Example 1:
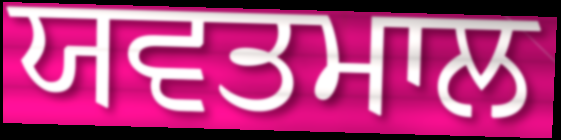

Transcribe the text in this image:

ਯਵਤਮਾਲ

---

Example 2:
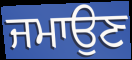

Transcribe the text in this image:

ਜਮਾਉਣ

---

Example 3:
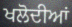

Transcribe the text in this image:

ਖਲੋਦੀਆਂ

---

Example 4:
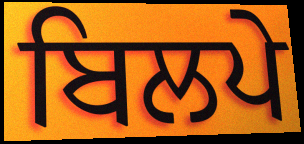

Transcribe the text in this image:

ਬਿਲਪੇ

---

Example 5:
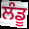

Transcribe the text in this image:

ਲੰਡੂ